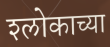
श्लोकाच्या